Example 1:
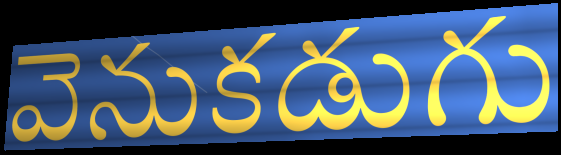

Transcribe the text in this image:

వెనుకడుగు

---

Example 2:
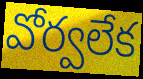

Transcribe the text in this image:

వోర్వలేక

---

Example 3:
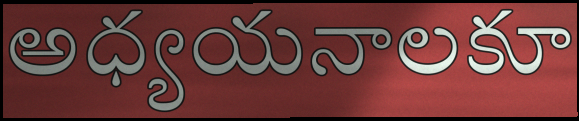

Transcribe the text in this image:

అధ్యయనాలకూ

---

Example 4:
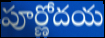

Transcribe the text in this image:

పూర్ణోదయ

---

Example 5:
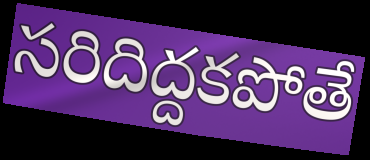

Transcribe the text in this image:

సరిదిద్దకపోతే